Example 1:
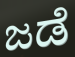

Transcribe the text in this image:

ಜಡೆ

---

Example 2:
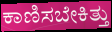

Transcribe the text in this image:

ಕಾಣಿಸಬೇಕಿತ್ತು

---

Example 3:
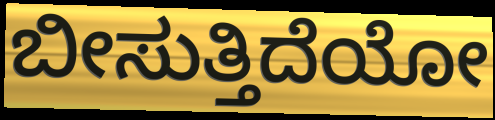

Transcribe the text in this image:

ಬೀಸುತ್ತಿದೆಯೋ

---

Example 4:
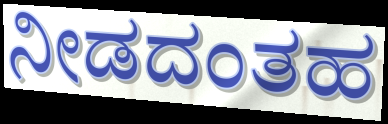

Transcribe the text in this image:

ನೀಡದಂತಹ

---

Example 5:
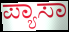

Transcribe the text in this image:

ಪ್ಯಾಸಾ